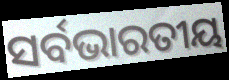
ସର୍ବଭାରତୀୟ